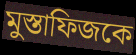
মুস্তাফিজকে